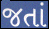
જતાં